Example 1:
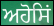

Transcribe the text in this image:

ਅਹੋਸਿਂ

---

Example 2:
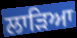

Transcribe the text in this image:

ਲਾੜਿਆ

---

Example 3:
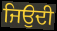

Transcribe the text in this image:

ਜਿਉਦੀ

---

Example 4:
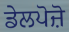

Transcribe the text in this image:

ਡੇਲਪੋਜ਼ੋ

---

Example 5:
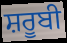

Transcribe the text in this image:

ਸ਼ਰੂਬੀ